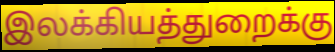
இலக்கியத்துறைக்கு